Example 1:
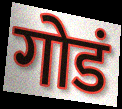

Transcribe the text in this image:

गोडं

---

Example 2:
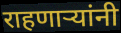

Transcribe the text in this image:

राहणार्‍यांनी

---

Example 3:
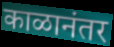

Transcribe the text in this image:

काळानंतर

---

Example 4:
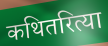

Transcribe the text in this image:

कथितरित्या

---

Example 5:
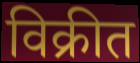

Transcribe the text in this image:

विक्रीत